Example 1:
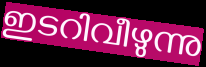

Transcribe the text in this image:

ഇടറിവീഴുന്നു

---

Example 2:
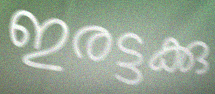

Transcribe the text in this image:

ഇരട്ടക്കു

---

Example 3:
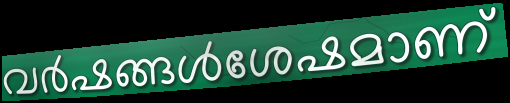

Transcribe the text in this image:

വർഷങ്ങൾശേഷമാണ്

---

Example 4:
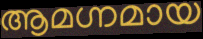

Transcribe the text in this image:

ആമഗ്നമായ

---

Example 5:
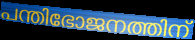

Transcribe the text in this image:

പന്തിഭോജനത്തിന്